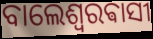
ବାଲେଶ୍ଵରଵାସୀ